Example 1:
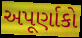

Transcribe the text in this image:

અપૂર્ણાકો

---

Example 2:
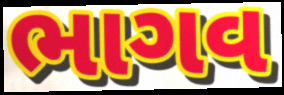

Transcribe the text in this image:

ભાગવ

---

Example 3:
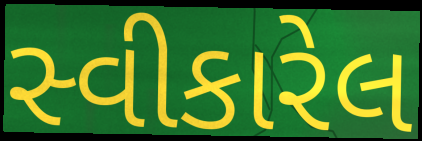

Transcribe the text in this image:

સ્વીકારેલ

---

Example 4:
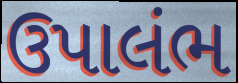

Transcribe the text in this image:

ઉપાલંભ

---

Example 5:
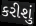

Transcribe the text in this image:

કરીશું